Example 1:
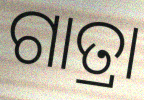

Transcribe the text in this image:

ଗାତ୍ରା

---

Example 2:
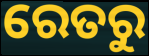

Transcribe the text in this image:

ରେତରୁ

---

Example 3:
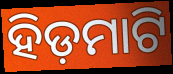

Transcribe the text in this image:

ହିଡ଼ମାଟି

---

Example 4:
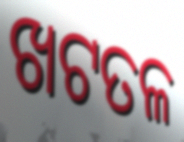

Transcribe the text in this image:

ଖଟତଳ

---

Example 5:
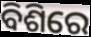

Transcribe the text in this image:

ବିଶିରେ